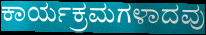
ಕಾರ್ಯಕ್ರಮಗಳಾದವು